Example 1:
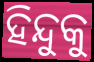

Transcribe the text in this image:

ହିନ୍ଦୁକୁ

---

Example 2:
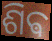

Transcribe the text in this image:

ଶିଵ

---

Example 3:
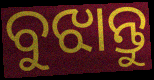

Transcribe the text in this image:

ବୁଝାନ୍ତୁ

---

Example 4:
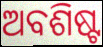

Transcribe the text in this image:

ଅବଶିଷ୍ଟ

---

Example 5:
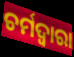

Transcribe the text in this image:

ଚର୍ମଦ୍ଵାରା